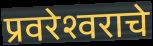
प्रवरेश्वराचे